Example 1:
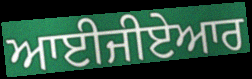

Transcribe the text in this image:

ਆਈਜੀਏਆਰ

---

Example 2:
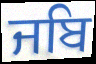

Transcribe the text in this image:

ਜਬਿ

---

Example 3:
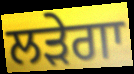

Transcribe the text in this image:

ਲੜੇਗਾ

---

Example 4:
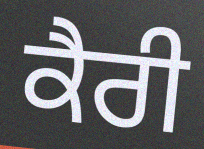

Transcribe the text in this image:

ਕੈਰੀ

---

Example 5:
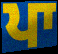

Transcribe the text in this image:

ਪਾ